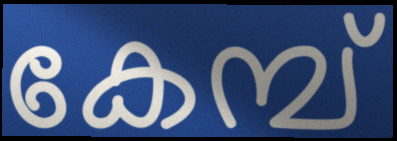
കേമ്പ്